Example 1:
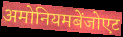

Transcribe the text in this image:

अमोनियमबेंजोएट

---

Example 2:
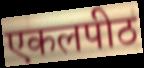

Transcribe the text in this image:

एकलपीठ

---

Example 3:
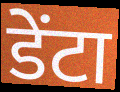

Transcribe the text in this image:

डेंटा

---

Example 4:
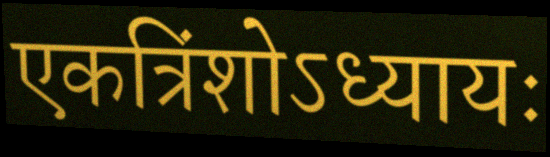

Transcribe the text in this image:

एकत्रिंशोऽध्यायः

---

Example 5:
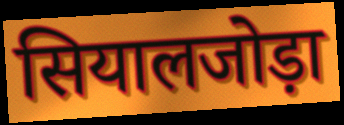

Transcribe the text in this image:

सियालजोड़ा